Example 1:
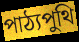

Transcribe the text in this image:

পাঠ্যপুথি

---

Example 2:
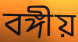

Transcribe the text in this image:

বঙ্গীয়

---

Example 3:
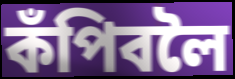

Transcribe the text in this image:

কঁপিবলৈ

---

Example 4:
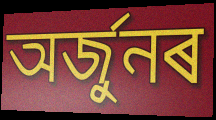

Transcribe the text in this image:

অৰ্জুনৰ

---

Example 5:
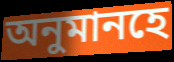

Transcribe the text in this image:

অনুমানহে